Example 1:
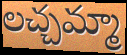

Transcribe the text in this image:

లచ్చమ్మా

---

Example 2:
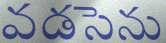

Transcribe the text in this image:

వడసెను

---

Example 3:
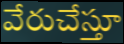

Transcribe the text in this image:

వేరుచేస్తూ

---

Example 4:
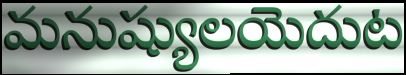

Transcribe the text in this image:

మనుష్యులయెదుట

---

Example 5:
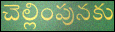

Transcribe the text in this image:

చెల్లింపునకు